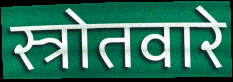
स्त्रोतवारे